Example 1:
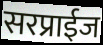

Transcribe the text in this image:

सरप्राईज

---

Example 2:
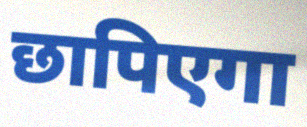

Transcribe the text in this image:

छापिएगा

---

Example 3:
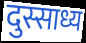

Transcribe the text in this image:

दुस्साध्य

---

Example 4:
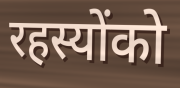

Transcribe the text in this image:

रहस्योंको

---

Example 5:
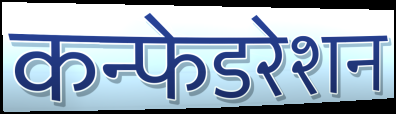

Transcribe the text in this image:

कन्‍फेडरेशन